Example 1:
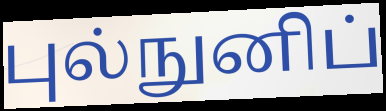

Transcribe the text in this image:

புல்நுனிப்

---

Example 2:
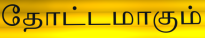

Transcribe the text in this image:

தோட்டமாகும்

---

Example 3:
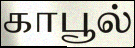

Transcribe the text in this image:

காபூல்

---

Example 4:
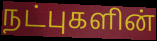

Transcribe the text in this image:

நட்புகளின்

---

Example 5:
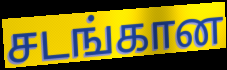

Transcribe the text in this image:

சடங்கான